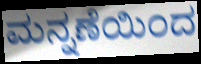
ಮನ್ನಣೆಯಿಂದ